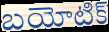
బయోటిక్